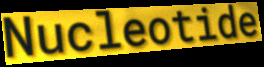
Nucleotide